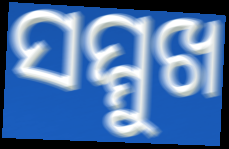
ସମ୍ମୁଖ